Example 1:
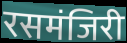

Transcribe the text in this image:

रसमंजिरी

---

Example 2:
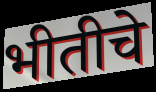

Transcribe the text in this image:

भीतीचे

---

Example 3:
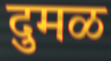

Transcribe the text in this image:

दुमळ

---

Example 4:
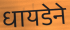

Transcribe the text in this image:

धायडेने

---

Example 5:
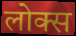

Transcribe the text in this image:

लोक्स